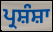
ਪ੍ਰਸ਼ੰਸ਼ਾ